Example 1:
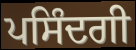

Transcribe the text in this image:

ਪਸਿੰਦਗੀ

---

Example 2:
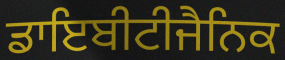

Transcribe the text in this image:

ਡਾਇਬੀਟੀਜੈਨਿਕ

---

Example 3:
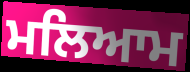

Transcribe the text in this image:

ਮਲਿਆਮ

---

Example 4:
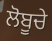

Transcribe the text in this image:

ਲੋਬੂਚੇ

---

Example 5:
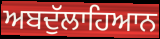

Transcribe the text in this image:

ਅਬਦੁੱਲਾਹਿਆਨ